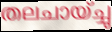
തലചായ്ച്ചു